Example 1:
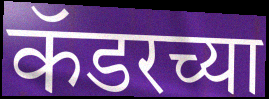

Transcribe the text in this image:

कॅडरच्या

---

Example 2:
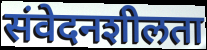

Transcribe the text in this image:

संवेदनशीलता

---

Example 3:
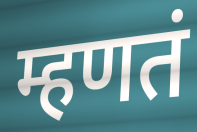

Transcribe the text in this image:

म्हणतं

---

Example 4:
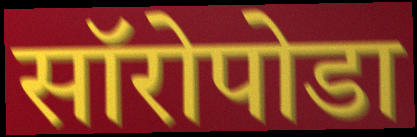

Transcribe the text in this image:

सॉरोपोडा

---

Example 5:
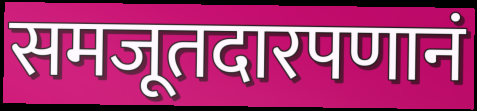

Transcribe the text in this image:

समजूतदारपणानं